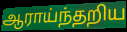
ஆராய்ந்தறிய